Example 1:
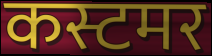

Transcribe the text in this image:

कस्‍टमर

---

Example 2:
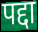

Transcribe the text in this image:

पद्दा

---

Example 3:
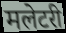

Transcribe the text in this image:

मलेटरी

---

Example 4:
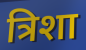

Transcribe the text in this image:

त्रिशा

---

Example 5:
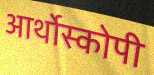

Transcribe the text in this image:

आर्थोस्कोपी